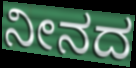
ನೀನದ